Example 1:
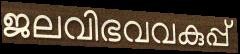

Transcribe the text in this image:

ജലവിഭവവകുപ്പ്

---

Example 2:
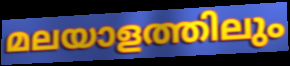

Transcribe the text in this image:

മലയാളത്തിലും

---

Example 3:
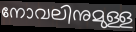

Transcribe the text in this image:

നോവലിനുമുള്ള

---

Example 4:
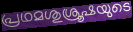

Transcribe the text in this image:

പ്രഥമശുശ്രൂഷയുടെ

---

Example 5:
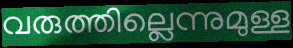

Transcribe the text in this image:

വരുത്തില്ലെന്നുമുള്ള